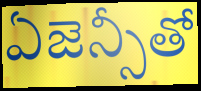
ఏజెన్సీతో